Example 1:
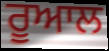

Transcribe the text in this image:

ਰੂਆਲ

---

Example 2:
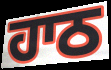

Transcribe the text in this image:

ਹਾਠ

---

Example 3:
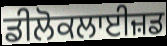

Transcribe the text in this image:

ਡੀਲੋਕਲਾਈਜ਼ਡ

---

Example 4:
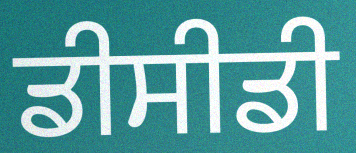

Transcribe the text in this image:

ਡੀਸੀਡੀ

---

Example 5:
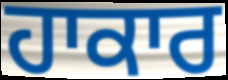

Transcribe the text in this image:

ਹਾਕਾਰ